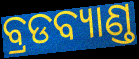
ବ୍ରଡବ୍ୟାଣ୍ଡ